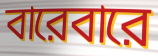
বারেবারে